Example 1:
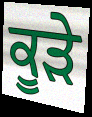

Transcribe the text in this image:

ਕੂੜੇ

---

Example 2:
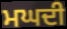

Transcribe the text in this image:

ਮਘਦੀ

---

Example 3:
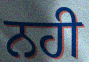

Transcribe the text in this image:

ਨਹੀ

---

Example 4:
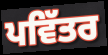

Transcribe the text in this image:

ਪਵਿੱਤਰ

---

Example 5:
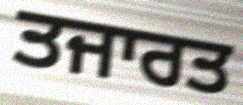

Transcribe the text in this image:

ਤਜਾਰਤ